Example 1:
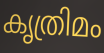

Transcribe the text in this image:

കൃത്രിമം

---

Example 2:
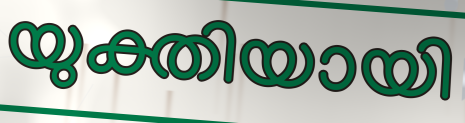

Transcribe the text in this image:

യുക്തിയായി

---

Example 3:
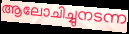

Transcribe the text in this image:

ആലോചിച്ചുനടന്ന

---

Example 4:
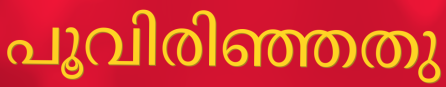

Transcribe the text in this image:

പൂവിരിഞ്ഞതു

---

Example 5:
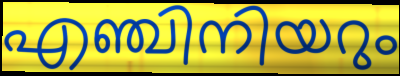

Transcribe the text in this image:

എഞ്ചിനിയറും